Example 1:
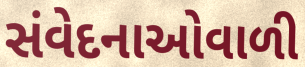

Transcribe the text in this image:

સંવેદનાઓવાળી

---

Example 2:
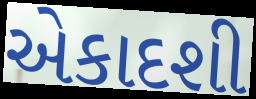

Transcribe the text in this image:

એકાદશી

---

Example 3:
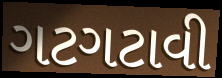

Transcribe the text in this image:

ગટગટાવી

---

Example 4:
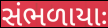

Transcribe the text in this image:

સંભળાયાઃ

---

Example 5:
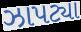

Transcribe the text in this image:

ઝાપટ્યા